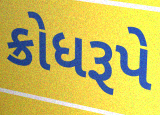
ક્રોધરૂપે